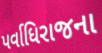
પર્વાધિરાજના